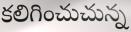
కలిగించుచున్న